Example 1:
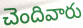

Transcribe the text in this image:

చెందివారు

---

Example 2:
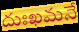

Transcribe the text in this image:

దుఃఖమనే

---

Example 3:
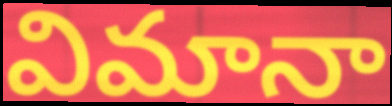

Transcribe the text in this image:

విమానా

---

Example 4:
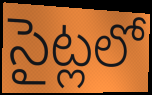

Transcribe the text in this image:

సైట్లలో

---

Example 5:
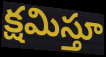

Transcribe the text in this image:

క్షమిస్తూ